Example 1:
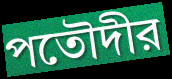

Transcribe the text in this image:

পতৌদীর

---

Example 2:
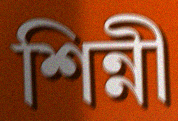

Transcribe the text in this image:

শিন্নী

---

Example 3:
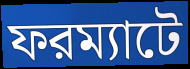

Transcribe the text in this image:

ফরম্যাটে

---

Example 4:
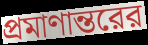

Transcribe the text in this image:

প্রমাণান্তরের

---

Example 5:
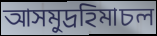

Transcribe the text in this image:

আসমুদ্রহিমাচল